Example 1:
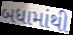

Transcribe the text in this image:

બધામાંથી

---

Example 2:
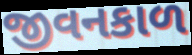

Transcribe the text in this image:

જીવનકાળ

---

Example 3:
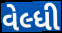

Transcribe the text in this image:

વેલ્ધી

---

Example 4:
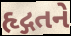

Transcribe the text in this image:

હૃદ્ગતને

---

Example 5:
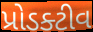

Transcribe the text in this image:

પ્રોડક્ટીવ